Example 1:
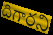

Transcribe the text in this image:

దిగారని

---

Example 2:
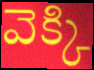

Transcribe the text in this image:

వెక్కి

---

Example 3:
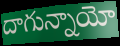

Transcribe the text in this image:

దాగున్నాయో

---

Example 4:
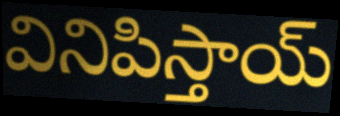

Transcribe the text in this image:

వినిపిస్తాయ్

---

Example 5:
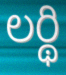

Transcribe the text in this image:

లర్థి